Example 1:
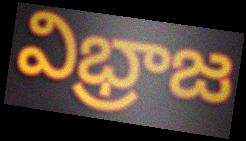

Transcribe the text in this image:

విభ్రాజ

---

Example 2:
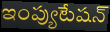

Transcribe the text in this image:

ఇంప్యుటేషన్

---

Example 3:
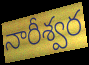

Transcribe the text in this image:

నారీశ్వర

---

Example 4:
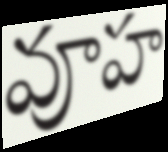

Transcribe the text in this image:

వూహ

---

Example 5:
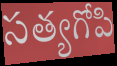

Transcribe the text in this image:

సత్యగోపి